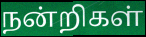
நன்றிகள்